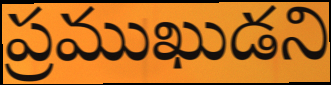
ప్రముఖుడని